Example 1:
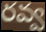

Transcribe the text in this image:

రవ్వ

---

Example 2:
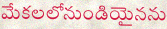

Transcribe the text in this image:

మేకలలోనుండియైనను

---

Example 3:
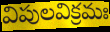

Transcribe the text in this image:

విపులవిక్రమః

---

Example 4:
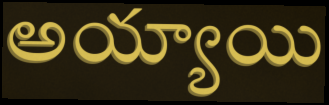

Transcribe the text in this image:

అయ్యాయి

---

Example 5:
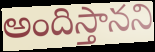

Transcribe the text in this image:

అందిస్తానని